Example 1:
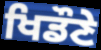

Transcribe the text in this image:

ਖਿਡੌਣੇ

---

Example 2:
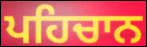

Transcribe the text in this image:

ਪਹਿਚਾਨ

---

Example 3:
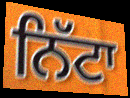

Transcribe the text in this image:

ਨਿੱਟਾ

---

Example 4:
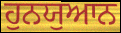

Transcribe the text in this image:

ਹੁਨਯੁਆਨ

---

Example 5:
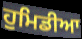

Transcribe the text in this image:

ਹੁਮਿਡੀਆ